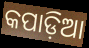
କପାଡ଼ିଆ